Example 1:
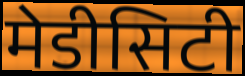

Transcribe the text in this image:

मेडीसिटी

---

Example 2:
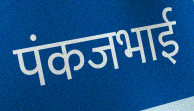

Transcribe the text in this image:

पंकजभाई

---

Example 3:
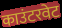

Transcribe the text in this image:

काउंटरवेट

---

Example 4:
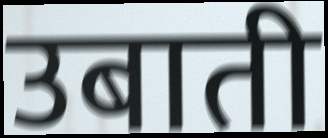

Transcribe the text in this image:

उबाती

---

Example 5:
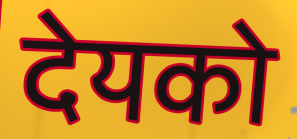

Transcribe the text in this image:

देयको